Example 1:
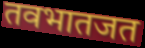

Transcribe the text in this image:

तवभातजत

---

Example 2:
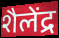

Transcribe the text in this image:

शैलेंद्र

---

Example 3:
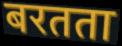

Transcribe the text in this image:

बरतता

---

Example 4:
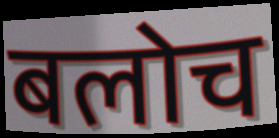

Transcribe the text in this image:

बलोच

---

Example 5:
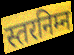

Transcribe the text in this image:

स्तरनिम्न